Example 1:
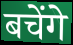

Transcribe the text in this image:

बचेंगे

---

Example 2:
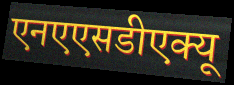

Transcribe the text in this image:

एनएएसडीएक्यू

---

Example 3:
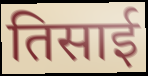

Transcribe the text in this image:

तिसाई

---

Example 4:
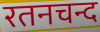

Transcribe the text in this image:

रतनचन्द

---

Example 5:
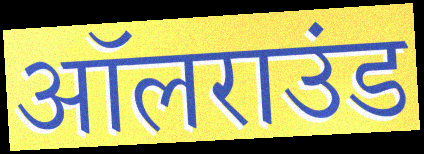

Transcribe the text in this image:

ऑलराउंड